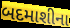
બદમાશીના